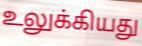
உலுக்கியது